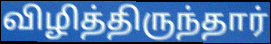
விழித்திருந்தார்